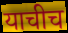
याचीच